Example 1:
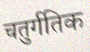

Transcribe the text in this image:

चतुर्गतिक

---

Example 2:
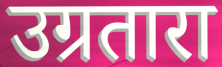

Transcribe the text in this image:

उग्रतारा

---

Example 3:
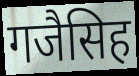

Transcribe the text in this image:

गजैसिह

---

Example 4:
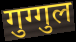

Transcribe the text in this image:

गुग्‍गुल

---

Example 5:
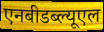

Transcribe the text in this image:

एनबीडब्ल्यूएल